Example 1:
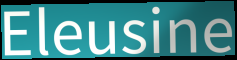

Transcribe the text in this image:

Eleusine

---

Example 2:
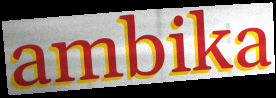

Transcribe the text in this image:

ambika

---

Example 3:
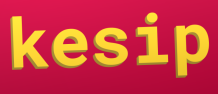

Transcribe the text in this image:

kesip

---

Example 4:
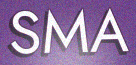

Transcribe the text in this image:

SMA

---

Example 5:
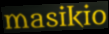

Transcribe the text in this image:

masikio